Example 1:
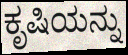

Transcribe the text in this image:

ಕೃಷಿಯನ್ನು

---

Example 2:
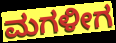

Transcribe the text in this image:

ಮಗಳೀಗ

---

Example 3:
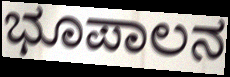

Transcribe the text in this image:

ಭೂಪಾಲನ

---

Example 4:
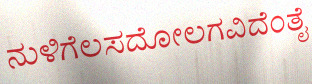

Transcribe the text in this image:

ನುಳಿಗೆಲಸದೋಲಗವಿದೆಂತೈ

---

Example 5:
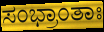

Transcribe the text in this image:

ಸಂಭ್ರಾಂತಾಃ